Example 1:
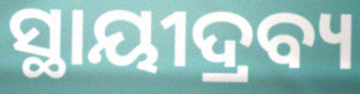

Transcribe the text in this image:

ସ୍ଥାୟୀଦ୍ରବ୍ୟ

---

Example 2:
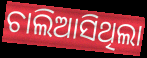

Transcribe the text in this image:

ଚାଲିଆସିଥିଲା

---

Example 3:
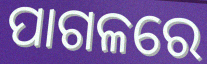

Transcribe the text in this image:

ପାଗଳରେ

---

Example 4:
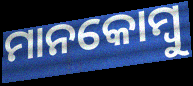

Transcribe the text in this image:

ମାନକୋମ୍ବୁ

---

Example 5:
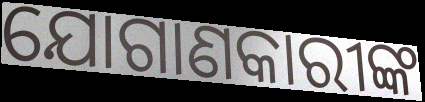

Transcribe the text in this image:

ଯୋଗାଣକାରୀଙ୍କ